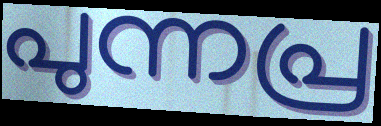
പുന്നപ്ര